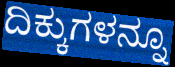
ದಿಕ್ಕುಗಳನ್ನೂ